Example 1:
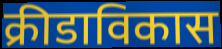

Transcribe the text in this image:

क्रीडाविकास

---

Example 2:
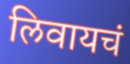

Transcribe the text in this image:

लिवायचं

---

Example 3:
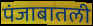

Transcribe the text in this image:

पंजाबातली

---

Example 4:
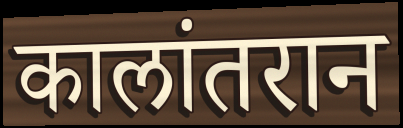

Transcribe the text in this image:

कालांतरान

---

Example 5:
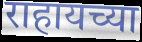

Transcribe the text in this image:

राहायच्या